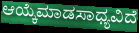
ಆಯ್ಕೆಮಾಡಸಾಧ್ಯವಿದೆ